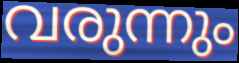
വരുന്നും